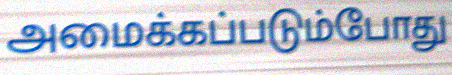
அமைக்கப்படும்போது